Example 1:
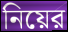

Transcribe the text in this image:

নিয়ের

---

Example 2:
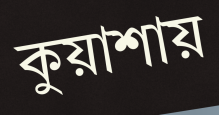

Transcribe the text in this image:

কুয়াশায়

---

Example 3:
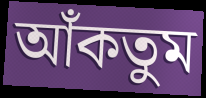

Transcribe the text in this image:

আঁকতুম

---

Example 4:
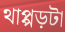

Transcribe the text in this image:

থাপ্পড়টা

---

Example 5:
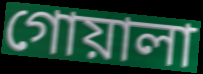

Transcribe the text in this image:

গোয়ালা